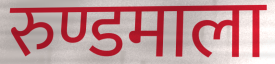
रुण्डमाला